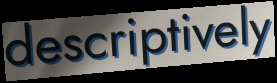
descriptively